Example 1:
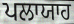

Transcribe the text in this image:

ਪਲਾਯਾਹ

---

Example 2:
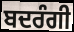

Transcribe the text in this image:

ਬਦਰੰਗੀ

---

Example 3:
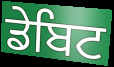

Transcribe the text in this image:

ਡੇਬਿਟ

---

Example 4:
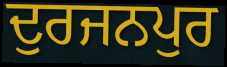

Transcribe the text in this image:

ਦੁਰਜਨਪੁਰ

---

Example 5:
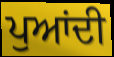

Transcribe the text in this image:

ਪੁਆਂਦੀ